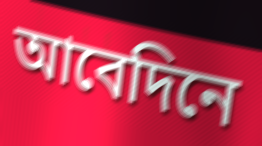
আবেদিনে